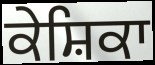
ਕੇਸ਼ਿਕਾ